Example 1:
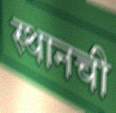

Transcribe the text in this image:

स्थानची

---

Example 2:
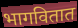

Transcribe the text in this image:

भागवितात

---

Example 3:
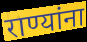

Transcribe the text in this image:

राण्यांना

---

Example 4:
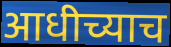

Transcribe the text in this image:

आधीच्याच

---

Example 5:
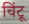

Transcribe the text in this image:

चिंटू